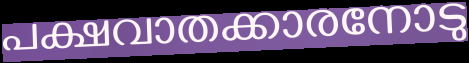
പക്ഷവാതക്കാരനോടു